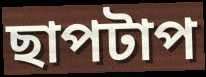
ছাপটাপ